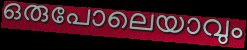
ഒരുപോലെയാവും